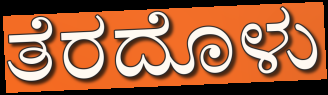
ತೆರದೊಳು